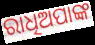
ରାଧିଅପାଙ୍କ